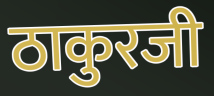
ठाकुरजी